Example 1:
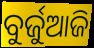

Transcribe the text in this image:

ବୁର୍ଜୁଆଜି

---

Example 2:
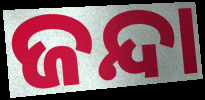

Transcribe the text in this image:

ଜନ୍ଦା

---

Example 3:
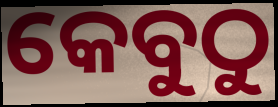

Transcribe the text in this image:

କେବୁଠୁ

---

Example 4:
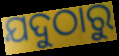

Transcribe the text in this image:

ଯଦୁଠାରୁ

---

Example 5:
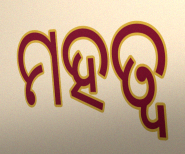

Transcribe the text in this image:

ମହତ୍ବ